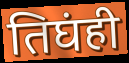
तिघंही